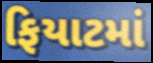
ફિયાટમાં